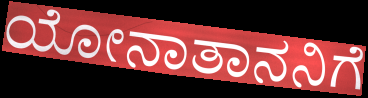
ಯೋನಾತಾನನಿಗೆ